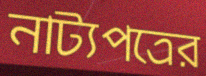
নাট্যপত্রের